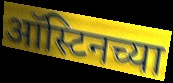
ऑस्टिनच्या